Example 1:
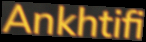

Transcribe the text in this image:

Ankhtifi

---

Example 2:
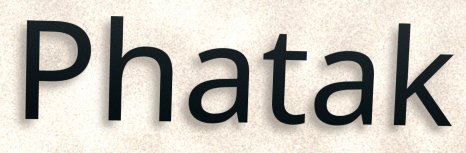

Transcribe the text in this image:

Phatak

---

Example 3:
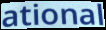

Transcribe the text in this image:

ational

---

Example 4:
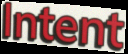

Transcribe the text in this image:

Intent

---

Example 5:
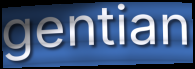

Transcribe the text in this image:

gentian